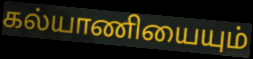
கல்யாணியையும்